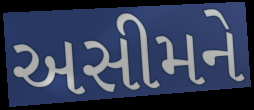
અસીમને